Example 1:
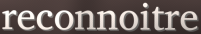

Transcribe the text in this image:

reconnoitre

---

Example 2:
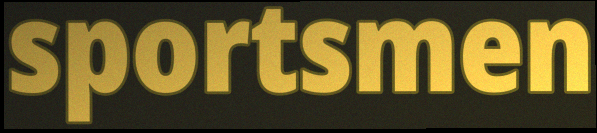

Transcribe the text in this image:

sportsmen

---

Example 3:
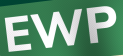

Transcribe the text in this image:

EWP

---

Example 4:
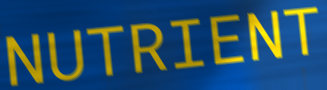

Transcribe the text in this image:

NUTRIENT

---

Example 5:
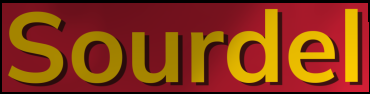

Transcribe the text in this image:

Sourdel